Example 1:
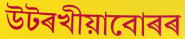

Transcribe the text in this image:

উটৰখীয়াবোৰৰ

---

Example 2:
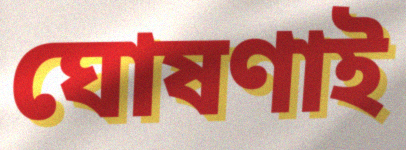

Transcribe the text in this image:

ঘোষণাই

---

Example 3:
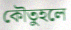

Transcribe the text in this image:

কৌতুহলে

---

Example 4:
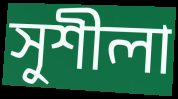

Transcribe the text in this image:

সুশীলা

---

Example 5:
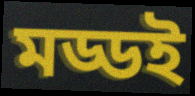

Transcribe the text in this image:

মড্ডই